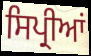
ਸਿਪ੍ਰੀਆਂ